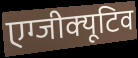
एग्जीक्यूटिव